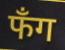
फँग